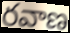
రవాణ